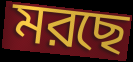
মরছে